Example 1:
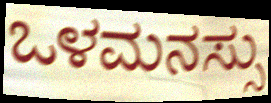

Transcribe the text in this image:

ಒಳಮನಸ್ಸು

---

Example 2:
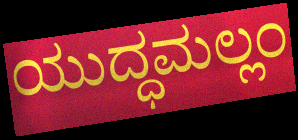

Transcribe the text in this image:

ಯುದ್ಧಮಲ್ಲಂ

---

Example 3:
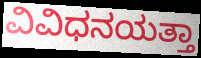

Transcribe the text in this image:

ವಿವಿಧನಯತ್ತಾ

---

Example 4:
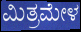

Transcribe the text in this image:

ಮಿತ್ರಮೇಳ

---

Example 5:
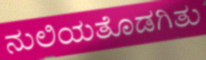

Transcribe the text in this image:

ನುಲಿಯತೊಡಗಿತು